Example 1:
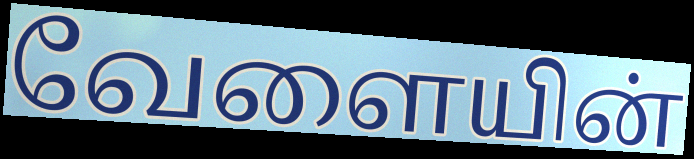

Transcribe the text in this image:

வேளையின்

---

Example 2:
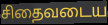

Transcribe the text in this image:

சிதைவடைய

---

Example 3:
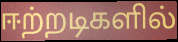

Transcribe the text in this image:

ஈற்றடிகளில்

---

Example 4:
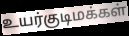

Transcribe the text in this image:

உயர்குடிமக்கள்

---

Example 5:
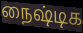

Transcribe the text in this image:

நைஷ்டிக